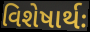
વિશેષાર્થઃ